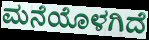
ಮನೆಯೊಳಗಿದೆ